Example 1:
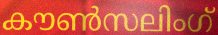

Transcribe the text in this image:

കൗൺസലിംഗ്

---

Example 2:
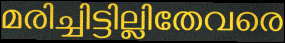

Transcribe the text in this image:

മരിച്ചിട്ടില്ലിതേവരെ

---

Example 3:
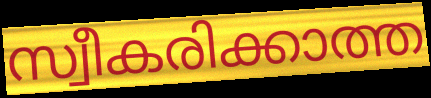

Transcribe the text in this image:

സ്വീകരിക്കാത്ത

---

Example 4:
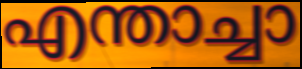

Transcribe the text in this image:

എന്താച്ചാ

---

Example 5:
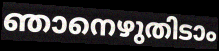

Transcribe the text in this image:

ഞാനെഴുതിടാം